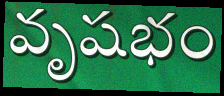
వృషభం